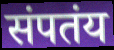
संपतंय